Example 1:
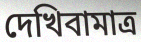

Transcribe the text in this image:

দেখিবামাত্র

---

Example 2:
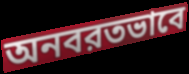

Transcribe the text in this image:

অনবরতভাবে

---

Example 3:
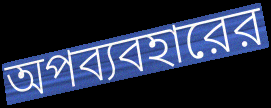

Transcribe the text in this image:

অপব্যবহারের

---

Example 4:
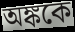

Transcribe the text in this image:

অঙ্ককে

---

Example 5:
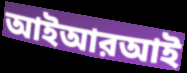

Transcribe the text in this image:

আইআরআই